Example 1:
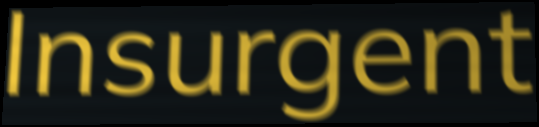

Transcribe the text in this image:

Insurgent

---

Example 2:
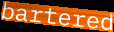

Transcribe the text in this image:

bartered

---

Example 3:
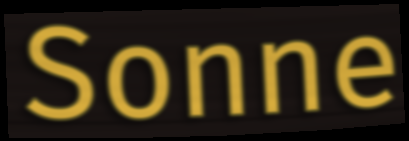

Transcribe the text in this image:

Sonne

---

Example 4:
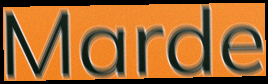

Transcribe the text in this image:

Marde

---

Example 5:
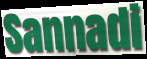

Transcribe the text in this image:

Sannadi